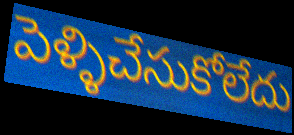
పెళ్ళిచేసుకోలేదు